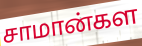
சாமான்கள